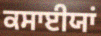
ਕਸਾਈਯਾਂ